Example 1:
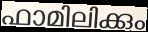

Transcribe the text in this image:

ഫാമിലിക്കും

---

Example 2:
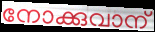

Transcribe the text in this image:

നോക്കുവാന്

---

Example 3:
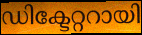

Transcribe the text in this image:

ഡിക്ടേറ്ററായി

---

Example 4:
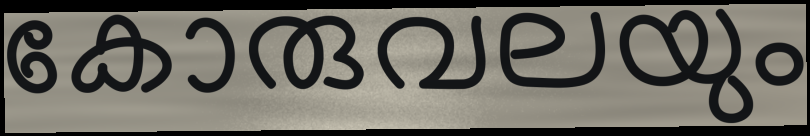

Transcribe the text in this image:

കോരുവലയും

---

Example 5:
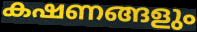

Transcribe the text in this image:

കഷണങ്ങളും